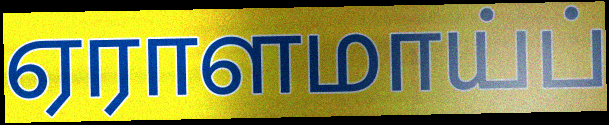
ஏராளமாய்ப்